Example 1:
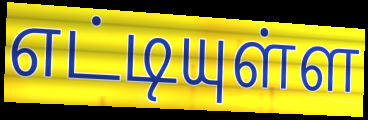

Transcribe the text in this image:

எட்டியுள்ள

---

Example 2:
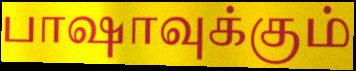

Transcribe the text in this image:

பாஷாவுக்கும்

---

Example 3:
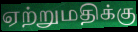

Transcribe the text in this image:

ஏற்றுமதிக்கு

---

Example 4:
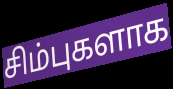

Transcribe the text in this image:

சிம்புகளாக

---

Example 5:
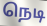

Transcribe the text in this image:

நெடி